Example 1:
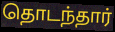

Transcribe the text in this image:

தொடந்தார்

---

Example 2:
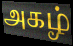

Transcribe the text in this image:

அகழ்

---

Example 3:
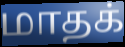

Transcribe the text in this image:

மாதக்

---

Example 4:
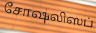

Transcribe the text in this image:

சோஷலிஸப்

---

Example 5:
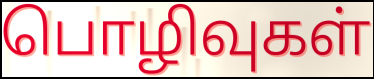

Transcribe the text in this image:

பொழிவுகள்